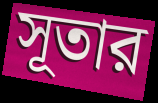
সূতার